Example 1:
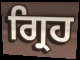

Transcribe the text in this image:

ਗ੍ਰਿਹ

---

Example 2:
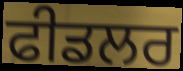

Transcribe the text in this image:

ਫੀਡਲਰ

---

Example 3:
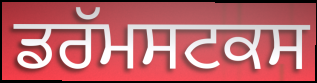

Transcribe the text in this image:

ਡਰੱਮਸਟਕਸ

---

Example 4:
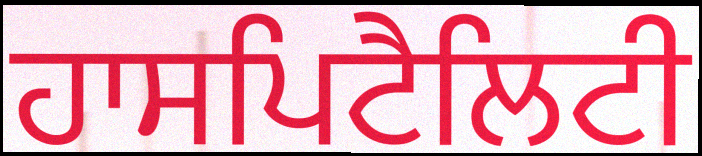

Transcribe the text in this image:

ਹਾਸਪਿਟੈਲਿਟੀ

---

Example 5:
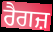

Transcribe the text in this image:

ਰੈਗਜ਼